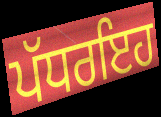
ਪੱਧਰਇਹ